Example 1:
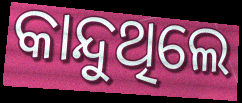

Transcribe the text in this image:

କାନ୍ଦୁଥିଲେ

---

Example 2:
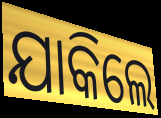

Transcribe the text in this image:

ଯାକିଲେ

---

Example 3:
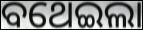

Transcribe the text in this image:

ବଥେଇଲା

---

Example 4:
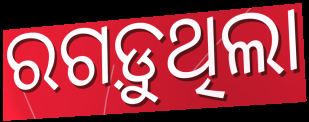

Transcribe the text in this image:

ରଗଡ଼ୁଥିଲା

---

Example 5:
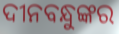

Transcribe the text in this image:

ଦୀନବନ୍ଧୁଙ୍କର